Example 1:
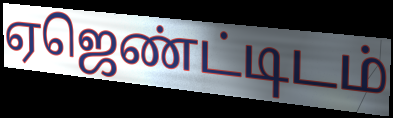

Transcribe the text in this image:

ஏஜெண்ட்டிடம்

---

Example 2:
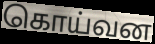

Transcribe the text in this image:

கொய்வன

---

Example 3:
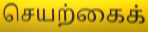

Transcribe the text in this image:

செயற்கைக்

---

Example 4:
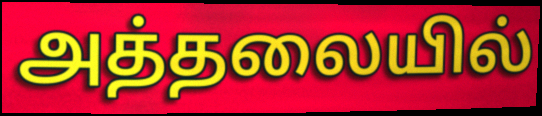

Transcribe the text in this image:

அத்தலையில்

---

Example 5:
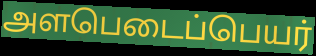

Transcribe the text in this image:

அளபெடைப்பெயர்